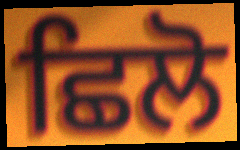
ਛਿਲੋ